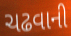
ચઢવાની